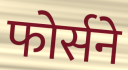
फोर्सने